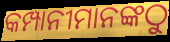
କମ୍ପାନୀମାନଙ୍କଠୁ